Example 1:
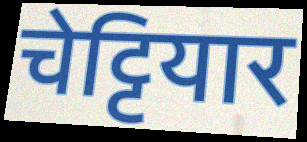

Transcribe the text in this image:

चेट्टियार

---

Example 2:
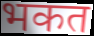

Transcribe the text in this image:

भकत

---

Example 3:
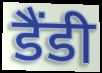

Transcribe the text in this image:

डैंडी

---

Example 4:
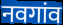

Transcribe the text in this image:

नवगांव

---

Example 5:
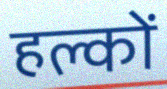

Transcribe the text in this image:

हल्कों